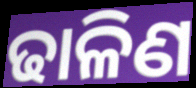
ଢାଳିଣ